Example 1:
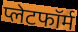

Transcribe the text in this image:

प्‍लेटफॉर्म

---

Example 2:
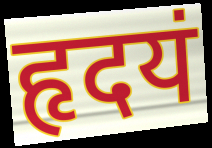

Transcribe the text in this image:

हृदयं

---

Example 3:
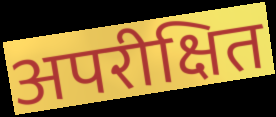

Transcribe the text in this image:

अपरीक्षित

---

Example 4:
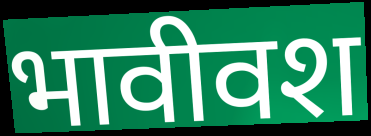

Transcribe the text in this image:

भावीवश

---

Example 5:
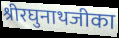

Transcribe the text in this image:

श्रीरघुनाथजीका